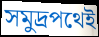
সমুদ্রপথেই